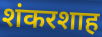
शंकरशाह